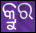
କ୍ରୁର